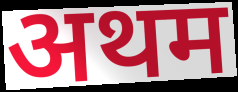
अथम